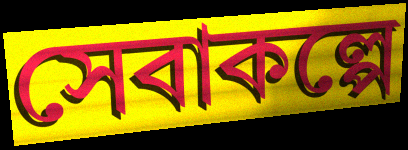
সেবাকল্পে